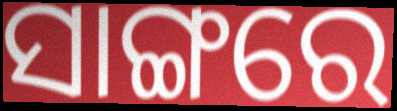
ସାଙ୍ଗରେ